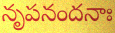
నృపనందనాః